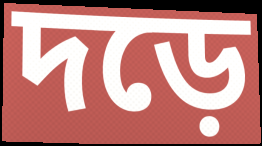
দড়ে